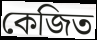
কেজিত